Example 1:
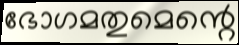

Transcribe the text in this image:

ഭോഗമതുമെന്റെ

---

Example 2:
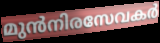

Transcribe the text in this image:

മുൻനിരസേവകർ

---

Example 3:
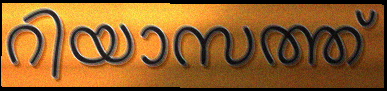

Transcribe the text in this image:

റിയാസത്ത്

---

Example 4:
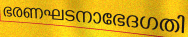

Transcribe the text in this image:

ഭരണഘടനാഭേദഗതി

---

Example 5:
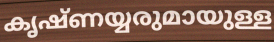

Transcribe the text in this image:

കൃഷ്ണയ്യരുമായുള്ള